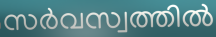
സർവസ്വത്തിൽ